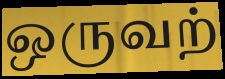
ஒருவற்